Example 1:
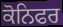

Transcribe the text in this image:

ਕੋਨਿਫਰ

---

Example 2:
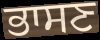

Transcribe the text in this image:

ਭਾਸਣ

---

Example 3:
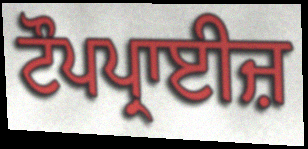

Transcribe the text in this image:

ਟੌਪਪ੍ਰਾਈਜ਼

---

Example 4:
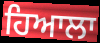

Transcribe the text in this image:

ਹਿਆਲਾ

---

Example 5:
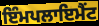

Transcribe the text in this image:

ਇੰਮਪਲਾਇਮੈਂਟ